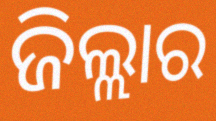
ଜିଲ୍ଲାର